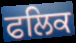
ਫਲਿਕ